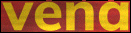
vena